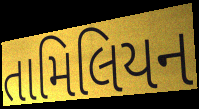
તામિલિયન